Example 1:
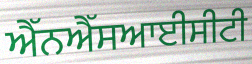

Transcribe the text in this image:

ਐੱਨਐੱਸਆਈਸੀਟੀ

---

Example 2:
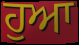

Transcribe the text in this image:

ਹੁਆ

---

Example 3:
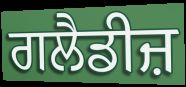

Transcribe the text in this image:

ਗਲੈਡੀਜ਼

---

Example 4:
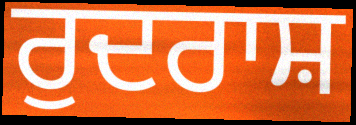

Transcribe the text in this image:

ਰੁਦਰਾਸ਼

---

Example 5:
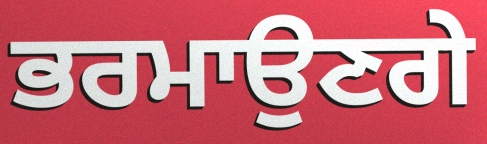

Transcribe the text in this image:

ਭਰਮਾਉਣਗੇ